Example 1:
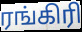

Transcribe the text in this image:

ரங்கிரி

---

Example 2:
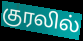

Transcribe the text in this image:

குரலில்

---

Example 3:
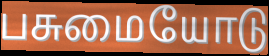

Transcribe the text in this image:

பசுமையோடு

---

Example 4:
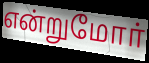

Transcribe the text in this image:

என்றுமோர்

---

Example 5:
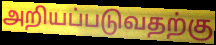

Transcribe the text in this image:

அறியப்படுவதற்கு